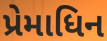
પ્રેમાધિન